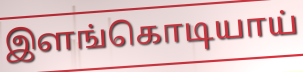
இளங்கொடியாய்